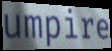
umpire